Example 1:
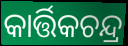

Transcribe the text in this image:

କାର୍ତ୍ତିକଚନ୍ଦ୍ର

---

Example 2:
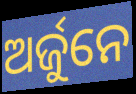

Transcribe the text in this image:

ଅର୍ଜୁନେ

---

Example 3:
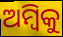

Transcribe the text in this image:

ଅମ୍ବିକୁ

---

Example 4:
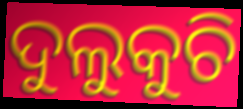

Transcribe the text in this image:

ଦୁଲୁକୁଚି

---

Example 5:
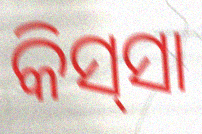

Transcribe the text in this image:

କିସ୍‍ସା